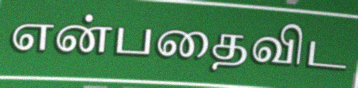
என்பதைவிட